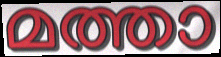
മത്താ